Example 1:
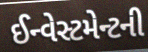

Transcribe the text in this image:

ઈન્વેસ્ટમેન્ટની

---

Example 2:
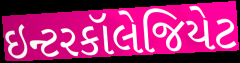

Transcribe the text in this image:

ઇન્ટરકૉલેજિયેટ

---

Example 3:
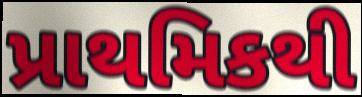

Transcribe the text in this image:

પ્રાથમિકથી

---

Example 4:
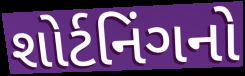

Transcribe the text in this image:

શોર્ટનિંગનો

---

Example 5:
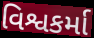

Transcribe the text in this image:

વિશ્વકર્મા